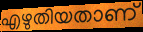
എഴുതിയതാണ്